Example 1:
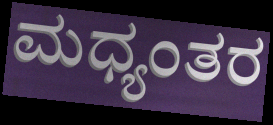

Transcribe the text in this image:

ಮಧ್ಯಂತರ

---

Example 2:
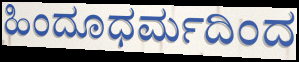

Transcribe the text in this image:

ಹಿಂದೂಧರ್ಮದಿಂದ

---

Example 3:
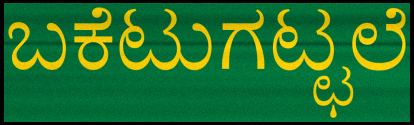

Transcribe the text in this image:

ಬಕೆಟುಗಟ್ಟಲೆ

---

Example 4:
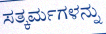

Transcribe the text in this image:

ಸತ್ಕರ್ಮಗಳನ್ನು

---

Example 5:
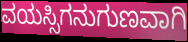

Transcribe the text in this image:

ವಯಸ್ಸಿಗನುಗುಣವಾಗಿ